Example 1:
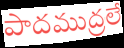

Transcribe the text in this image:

పాదముద్రలే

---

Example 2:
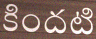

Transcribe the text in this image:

కిందటి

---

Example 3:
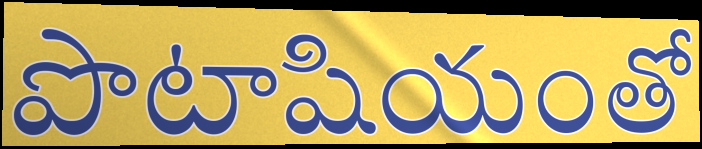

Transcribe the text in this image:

పొటాషియంతో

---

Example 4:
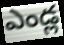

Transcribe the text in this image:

ఎండ్ల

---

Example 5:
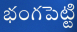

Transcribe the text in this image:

భంగపెట్టి